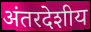
अंतरदेशीय